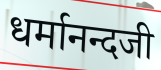
धर्मानन्दजी